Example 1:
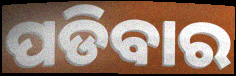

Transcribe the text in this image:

ପଡିବାର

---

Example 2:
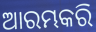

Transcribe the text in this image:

ଆରମ୍ଭକରି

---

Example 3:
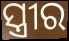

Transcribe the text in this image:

ସ୍ତ୍ରୀର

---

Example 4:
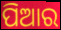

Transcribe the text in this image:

ପିଆର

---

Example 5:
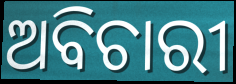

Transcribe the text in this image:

ଅବିଚାରୀ